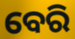
ବେରି